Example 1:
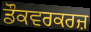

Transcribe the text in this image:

ਡੌਕਵਰਕਰਜ਼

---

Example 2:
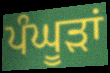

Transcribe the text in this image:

ਪੰਘੂੜਾਂ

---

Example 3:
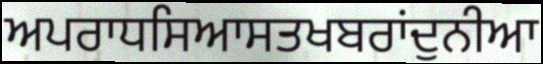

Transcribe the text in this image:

ਅਪਰਾਧਸਿਆਸਤਖਬਰਾਂਦੁਨੀਆ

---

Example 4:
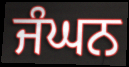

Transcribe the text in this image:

ਜੰਘਨ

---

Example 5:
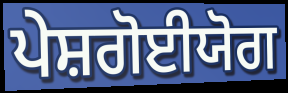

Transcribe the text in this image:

ਪੇਸ਼ਗੋਈਯੋਗ